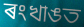
ৰংখাঙত